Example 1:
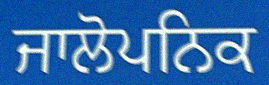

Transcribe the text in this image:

ਜਾਲੋਪਨਿਕ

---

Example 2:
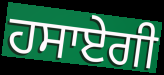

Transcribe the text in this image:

ਹਸਾਏਗੀ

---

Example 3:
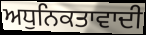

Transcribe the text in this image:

ਅਧੁਨਿਕਤਾਵਾਦੀ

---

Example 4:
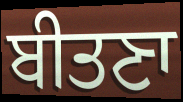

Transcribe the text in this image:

ਬੀਤਣਾ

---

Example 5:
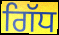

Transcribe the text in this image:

ਗਿੱਧ